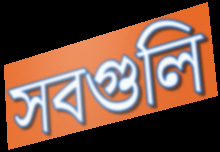
সবগুলি